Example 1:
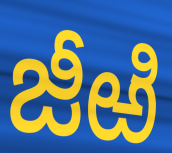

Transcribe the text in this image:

జీఱి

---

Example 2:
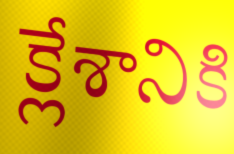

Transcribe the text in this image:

క్లేశానికి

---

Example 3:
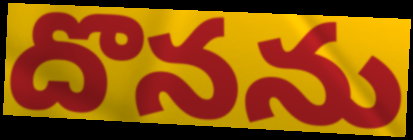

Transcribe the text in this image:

దొనను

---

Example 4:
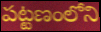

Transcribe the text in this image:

పట్టణంలోని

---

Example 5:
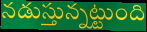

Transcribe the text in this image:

నడుస్తున్నట్టుంది